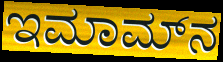
ಇಮಾಮ್‍ನ